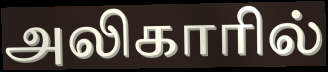
அலிகாரில்